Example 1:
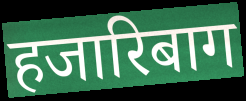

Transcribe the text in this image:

हजारिबाग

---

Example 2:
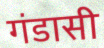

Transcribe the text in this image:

गंडासी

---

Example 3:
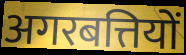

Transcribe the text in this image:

अगरबत्तियों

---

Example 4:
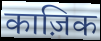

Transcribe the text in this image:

काज़िक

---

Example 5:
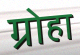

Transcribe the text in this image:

ग्रोहा